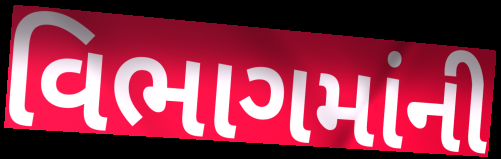
વિભાગમાંની